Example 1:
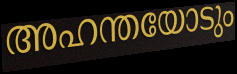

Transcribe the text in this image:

അഹന്തയോടും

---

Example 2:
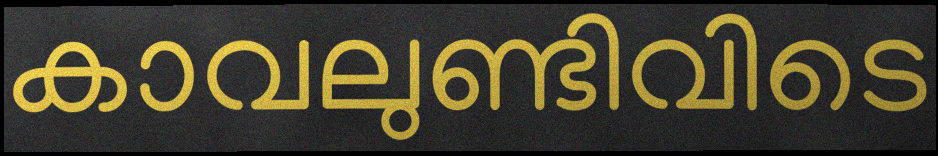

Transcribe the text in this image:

കാവലുണ്ടിവിടെ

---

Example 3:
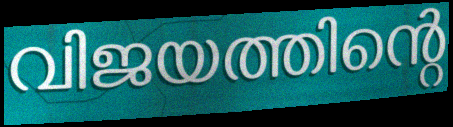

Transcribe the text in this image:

വിജയത്തിന്റെ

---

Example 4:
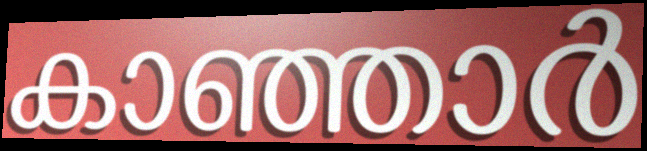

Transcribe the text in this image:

കാഞ്ഞാർ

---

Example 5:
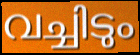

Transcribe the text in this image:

വച്ചിടും